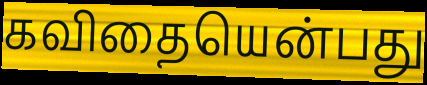
கவிதையென்பது